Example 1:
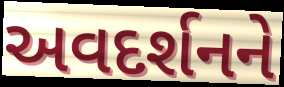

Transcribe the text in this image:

અવદર્શનને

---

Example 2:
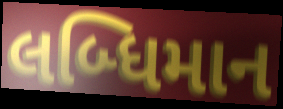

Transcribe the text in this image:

લબ્ધિમાન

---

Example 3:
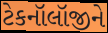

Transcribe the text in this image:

ટેકનૉલૉજીને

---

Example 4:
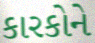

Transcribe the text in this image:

કારકોને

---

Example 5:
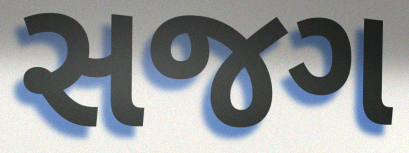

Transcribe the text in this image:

સજગ